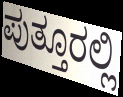
ಪುತ್ತೂರಲ್ಲಿ